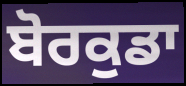
ਬੋਰਕੁਡਾ